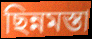
ছিন্নমস্তা